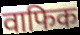
वाफिक